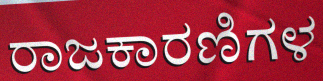
ರಾಜಕಾರಣಿಗಳ